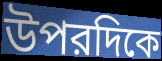
উপরদিকে